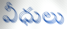
వీధులు